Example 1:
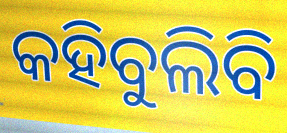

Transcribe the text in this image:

କହିବୁଲିବି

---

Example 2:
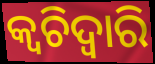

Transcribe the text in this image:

କ୍ଵଚିଦ୍ୱାରି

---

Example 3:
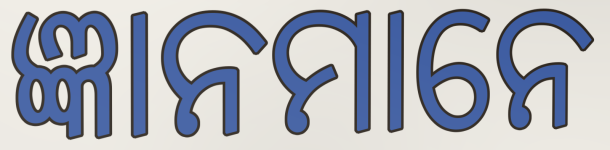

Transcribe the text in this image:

ଜ୍ଞାନମାନେ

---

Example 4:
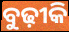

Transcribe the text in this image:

ବୁଢ଼ୀକି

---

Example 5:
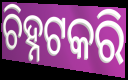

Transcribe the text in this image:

ଚିହ୍ନଟକରି